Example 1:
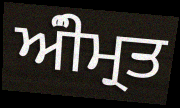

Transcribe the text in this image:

ਅੰੀਮ੍ਰਤ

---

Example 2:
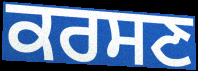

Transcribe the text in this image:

ਕਰਸਣ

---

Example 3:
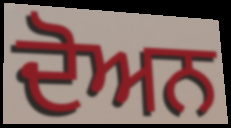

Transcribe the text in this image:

ਦੋਅਨ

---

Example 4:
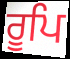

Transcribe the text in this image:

ਰੂਪਿ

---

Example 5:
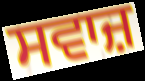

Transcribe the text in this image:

ਸਵਾਜ਼